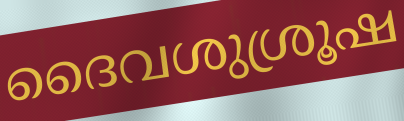
ദൈവശുശ്രൂഷ